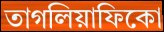
তাগলিয়াফিকো